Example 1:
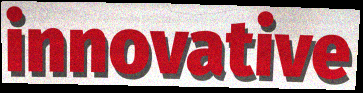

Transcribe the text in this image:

innovative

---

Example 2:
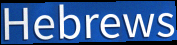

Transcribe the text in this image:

Hebrews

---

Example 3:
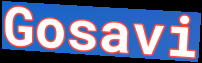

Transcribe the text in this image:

Gosavi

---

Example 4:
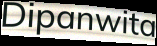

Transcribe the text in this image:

Dipanwita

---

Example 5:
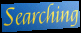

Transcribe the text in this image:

Searching